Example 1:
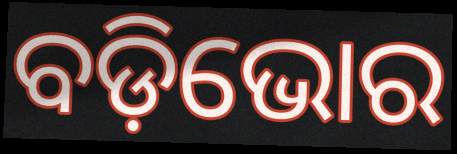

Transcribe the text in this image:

ବଡ଼ିଭୋର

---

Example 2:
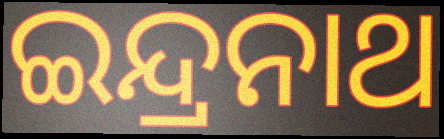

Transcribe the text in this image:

ଇନ୍ଦ୍ରନାଥ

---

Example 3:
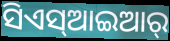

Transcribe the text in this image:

ସିଏସ୍ଆଇଆର୍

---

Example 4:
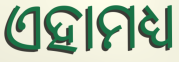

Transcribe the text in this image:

ଏହାମଧ୍ୟ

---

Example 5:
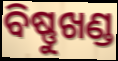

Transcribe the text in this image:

ବିଷ୍ଣୁଖଣ୍ଡ